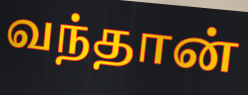
வந்தான்